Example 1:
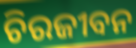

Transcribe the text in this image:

ଚିରଜୀବନ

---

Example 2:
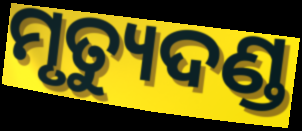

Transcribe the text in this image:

ମୃତ୍ୟୁଦଣ୍ଡ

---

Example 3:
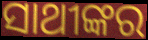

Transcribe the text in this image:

ସାଥୀଙ୍କର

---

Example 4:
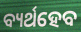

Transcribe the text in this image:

ବ୍ୟର୍ଥହେବ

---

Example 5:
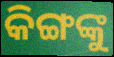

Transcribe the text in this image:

କିଙ୍ଗଙ୍କୁ